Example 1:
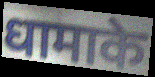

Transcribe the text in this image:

धामाके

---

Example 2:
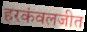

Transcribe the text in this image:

हरकंवलजीत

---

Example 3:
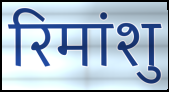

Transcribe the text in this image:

रिमांशु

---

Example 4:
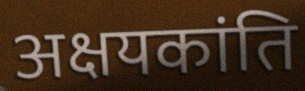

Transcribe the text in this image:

अक्षयकांति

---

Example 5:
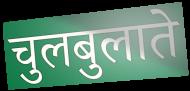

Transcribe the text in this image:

चुलबुलाते